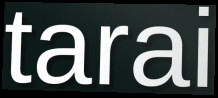
tarai